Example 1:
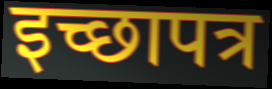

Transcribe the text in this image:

इच्छापत्र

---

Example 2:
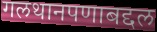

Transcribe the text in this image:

गलथानपणाबद्दल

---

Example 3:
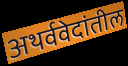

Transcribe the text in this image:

अथर्ववेदांतील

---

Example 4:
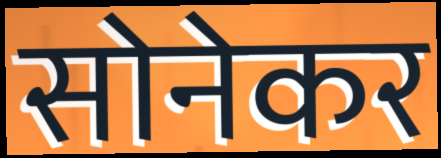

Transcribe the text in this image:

सोनेकर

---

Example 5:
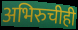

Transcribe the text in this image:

अभिरुचीही